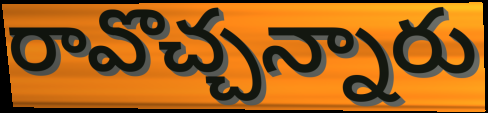
రావొచ్చన్నారు